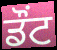
ਡੌਂਟ